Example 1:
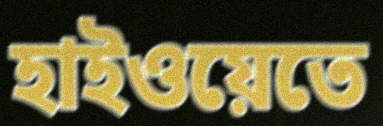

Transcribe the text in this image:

হাইওয়েতে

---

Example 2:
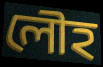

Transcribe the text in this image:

লৌহ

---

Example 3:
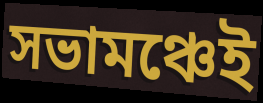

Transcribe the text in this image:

সভামঞ্চেই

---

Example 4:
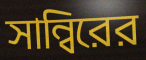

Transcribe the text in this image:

সান্বিরের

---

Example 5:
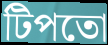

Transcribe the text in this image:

টিপতো